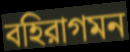
বহিরাগমন